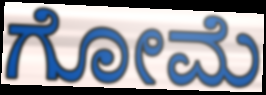
ಗೋಮೆ